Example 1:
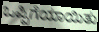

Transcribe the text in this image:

ಒಪ್ಪಿಗೆಯಾಯಿತು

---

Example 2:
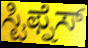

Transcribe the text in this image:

ಸ್ಟಿಫ್ನೆಸ್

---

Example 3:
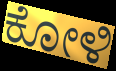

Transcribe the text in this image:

ಕೋಳಿ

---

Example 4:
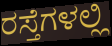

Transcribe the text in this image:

ರಸ್ತೆಗಳಲ್ಲಿ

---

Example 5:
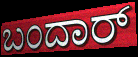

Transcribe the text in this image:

ಬಂದಾರ್